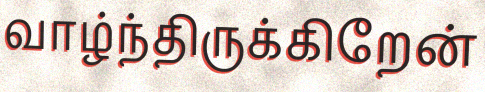
வாழ்ந்திருக்கிறேன்